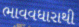
ભાવવધારાથી